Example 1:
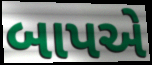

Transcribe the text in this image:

બાપએ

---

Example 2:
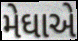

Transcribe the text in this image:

મેઘાએ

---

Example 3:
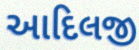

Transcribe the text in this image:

આદિલજી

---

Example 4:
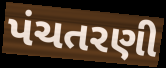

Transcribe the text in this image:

પંચતરણી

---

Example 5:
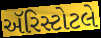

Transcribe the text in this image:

ઍરિસ્ટોટલે